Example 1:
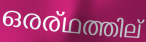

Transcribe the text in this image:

ഒരര്ഥത്തില്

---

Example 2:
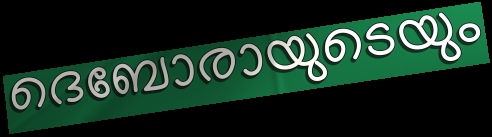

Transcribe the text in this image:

ദെബോരായുടെയും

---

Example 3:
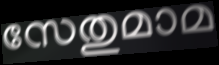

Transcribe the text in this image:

സേതുമാമ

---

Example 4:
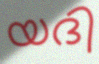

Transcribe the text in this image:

യദി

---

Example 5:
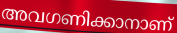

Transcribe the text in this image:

അവഗണിക്കാനാണ്